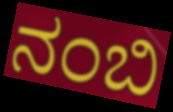
ನಂಬಿ